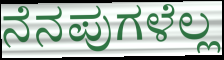
ನೆನಪುಗಳೆಲ್ಲ